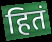
हितं